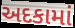
અદકામાં